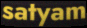
satyam